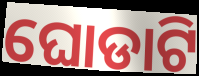
ଘୋଡାଟି